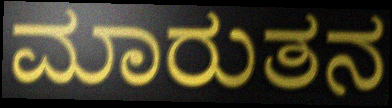
ಮಾರುತನ